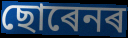
ছোৰেনৰ